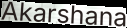
Akarshana